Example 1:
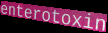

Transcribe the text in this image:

enterotoxin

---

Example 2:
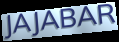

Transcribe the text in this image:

JAJABAR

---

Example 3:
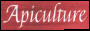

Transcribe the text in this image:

Apiculture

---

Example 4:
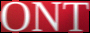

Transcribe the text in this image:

ONT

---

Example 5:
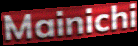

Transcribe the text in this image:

Mainichi